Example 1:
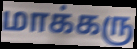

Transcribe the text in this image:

மாக்கரு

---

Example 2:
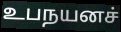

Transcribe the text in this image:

உபநயனச்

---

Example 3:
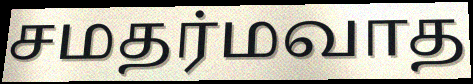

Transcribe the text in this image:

சமதர்மவாத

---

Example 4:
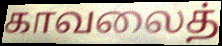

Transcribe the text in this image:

காவலைத்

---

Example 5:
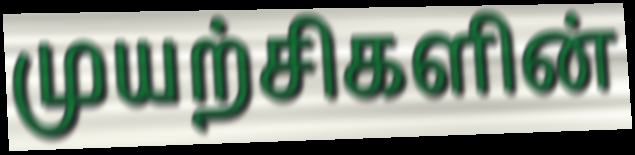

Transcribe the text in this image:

முயற்சிகளின்